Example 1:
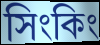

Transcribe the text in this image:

সিংকিং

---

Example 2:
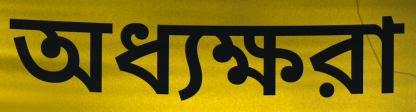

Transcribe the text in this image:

অধ্যক্ষরা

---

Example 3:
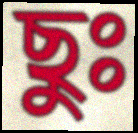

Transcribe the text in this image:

ছুঃ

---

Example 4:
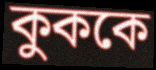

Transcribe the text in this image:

কুককে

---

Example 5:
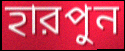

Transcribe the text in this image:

হারপুন